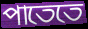
পাতেতে